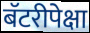
बॅटरीपेक्षा